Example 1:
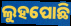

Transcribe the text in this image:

ଲୁହପୋଛି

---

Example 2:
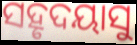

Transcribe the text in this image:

ସହୃଦୟାସୁ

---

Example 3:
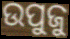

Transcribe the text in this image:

ଉପୁଜୁ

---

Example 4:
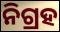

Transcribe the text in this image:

ନିଗ୍ରହ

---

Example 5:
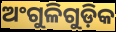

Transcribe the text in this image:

ଅଂଗୁଳିଗୁଡ଼ିକ